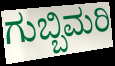
ಗುಬ್ಬಿಮರಿ